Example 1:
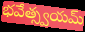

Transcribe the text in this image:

భవేత్స్వయమ్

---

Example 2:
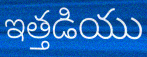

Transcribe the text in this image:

ఇత్తడియు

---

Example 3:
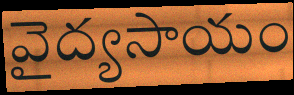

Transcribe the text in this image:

వైద్యసాయం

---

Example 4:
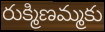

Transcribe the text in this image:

రుక్మిణమ్మకు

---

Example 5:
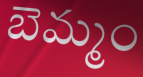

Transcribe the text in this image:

బెమ్మం